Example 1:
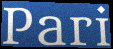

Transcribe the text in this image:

Pari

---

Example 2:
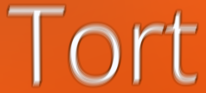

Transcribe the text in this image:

Tort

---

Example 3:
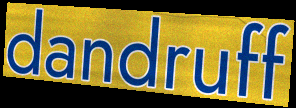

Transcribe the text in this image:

dandruff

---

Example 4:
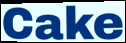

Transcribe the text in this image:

Cake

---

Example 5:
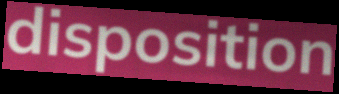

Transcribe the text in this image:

disposition